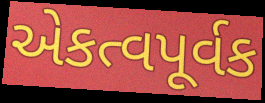
એકત્વપૂર્વક